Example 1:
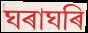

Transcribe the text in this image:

ঘৰাঘৰি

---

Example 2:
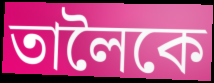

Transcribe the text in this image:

তালৈকে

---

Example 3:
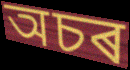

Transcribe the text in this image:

অচৰ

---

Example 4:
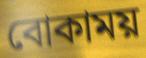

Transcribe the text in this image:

বোকাময়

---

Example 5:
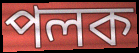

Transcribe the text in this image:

পলক